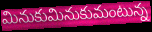
మినుకుమినుకుమంటున్న